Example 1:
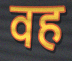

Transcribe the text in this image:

वह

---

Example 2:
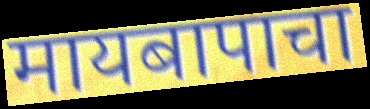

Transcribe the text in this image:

मायबापाचा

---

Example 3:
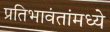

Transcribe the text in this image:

प्रतिभावंतांमध्ये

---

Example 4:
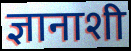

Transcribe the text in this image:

ज्ञानाशी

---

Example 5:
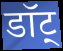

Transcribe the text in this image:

डॉट्